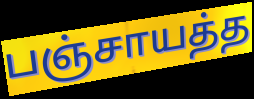
பஞ்சாயத்த